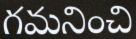
గమనించి